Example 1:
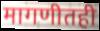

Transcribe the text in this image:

मागणीतही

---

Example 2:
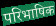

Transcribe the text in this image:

परिभाषिक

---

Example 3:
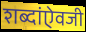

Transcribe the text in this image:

शब्दांऐवजी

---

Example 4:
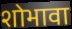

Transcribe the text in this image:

शोभावा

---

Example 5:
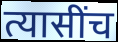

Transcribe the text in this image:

त्यासींच